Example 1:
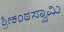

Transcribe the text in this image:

ಶ್ರೀಕಂಠಸ್ವಾಮಿ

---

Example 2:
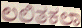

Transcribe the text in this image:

ಲಲಿತಕಲಾ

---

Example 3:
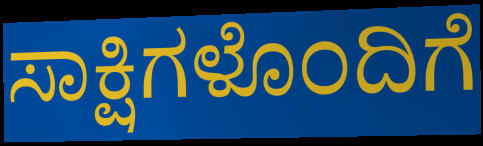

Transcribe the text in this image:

ಸಾಕ್ಷಿಗಳೊಂದಿಗೆ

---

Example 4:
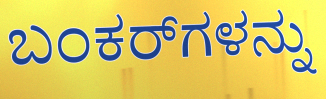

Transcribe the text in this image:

ಬಂಕರ್‌ಗಳನ್ನು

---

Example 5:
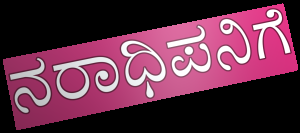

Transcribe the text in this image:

ನರಾಧಿಪನಿಗೆ